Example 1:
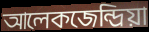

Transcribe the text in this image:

আলেকজেন্দ্ৰিয়া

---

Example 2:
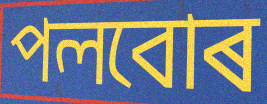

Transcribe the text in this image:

পলবোৰ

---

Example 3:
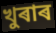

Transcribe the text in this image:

খুৰাৰ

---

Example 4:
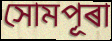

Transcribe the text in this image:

সোমপূৰা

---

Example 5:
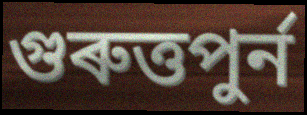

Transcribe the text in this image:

গুৰুত্তপুৰ্ন